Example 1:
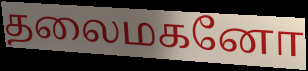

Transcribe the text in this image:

தலைமகனோ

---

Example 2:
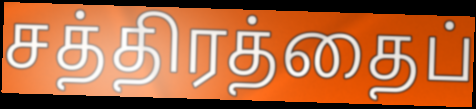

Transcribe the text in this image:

சத்திரத்தைப்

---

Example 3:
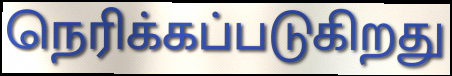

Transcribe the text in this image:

நெரிக்கப்படுகிறது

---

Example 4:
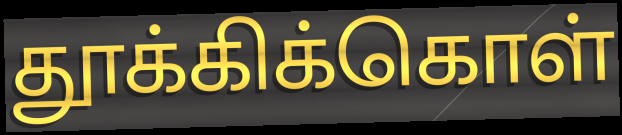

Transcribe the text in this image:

தூக்கிக்கொள்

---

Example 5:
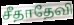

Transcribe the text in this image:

சீதாதேவி